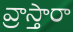
వ్రాస్తారా